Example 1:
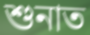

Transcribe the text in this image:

শুনাত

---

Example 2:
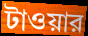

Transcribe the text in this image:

টাওয়ার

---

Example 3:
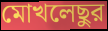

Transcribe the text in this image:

মোখলেছুর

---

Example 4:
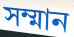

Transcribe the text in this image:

সম্মান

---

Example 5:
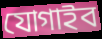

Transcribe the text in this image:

যোগাইব